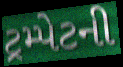
ટ્રમ્પેટની